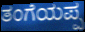
ತಂಗೆಯಪ್ಪ